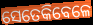
ସେତେକିବେଳେ